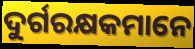
ଦୁର୍ଗରକ୍ଷକମାନେ